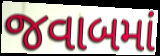
જવાબમાં